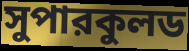
সুপারকুলড